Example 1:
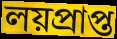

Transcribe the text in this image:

লয়প্রাপ্ত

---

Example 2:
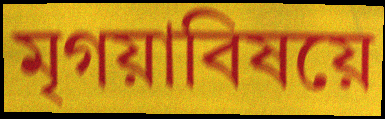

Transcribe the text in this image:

মৃগয়াবিষয়ে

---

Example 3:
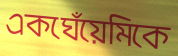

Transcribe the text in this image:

একঘেঁয়েমিকে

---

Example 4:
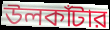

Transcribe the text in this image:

উলকাঁটার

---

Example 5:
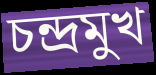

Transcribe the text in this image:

চন্দ্রমুখ